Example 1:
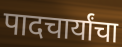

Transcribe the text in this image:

पादचार्यांचा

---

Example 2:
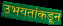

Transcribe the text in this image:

उभयतांकडून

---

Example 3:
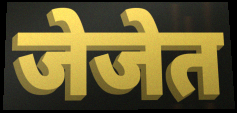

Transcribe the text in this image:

जेजेत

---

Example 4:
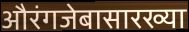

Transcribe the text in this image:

औरंगजेबासारख्या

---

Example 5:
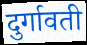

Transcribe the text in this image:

दुर्गावती